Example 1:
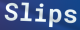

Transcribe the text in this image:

Slips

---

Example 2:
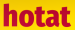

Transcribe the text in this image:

hotat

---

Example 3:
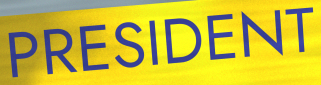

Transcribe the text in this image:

PRESIDENT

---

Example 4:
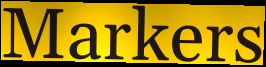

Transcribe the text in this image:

Markers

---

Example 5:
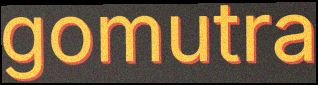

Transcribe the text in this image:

gomutra